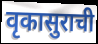
वृकासुराची